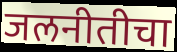
जलनीतीचा